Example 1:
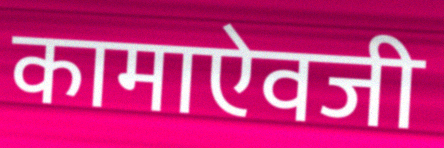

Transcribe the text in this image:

कामाऐवजी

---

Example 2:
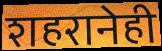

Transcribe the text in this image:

शहरानेही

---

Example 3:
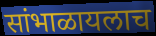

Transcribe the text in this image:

सांभाळायलाच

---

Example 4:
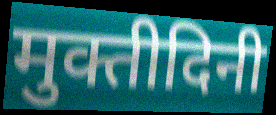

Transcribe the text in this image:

मुक्तीदिनी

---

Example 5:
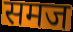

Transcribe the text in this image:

समज